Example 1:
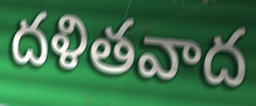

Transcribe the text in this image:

దళితవాద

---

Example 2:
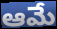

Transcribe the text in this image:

ఆమే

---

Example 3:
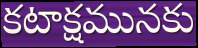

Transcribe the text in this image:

కటాక్షమునకు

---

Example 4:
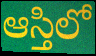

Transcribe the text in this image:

ఆస్తిలో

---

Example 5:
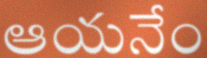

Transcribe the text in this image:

ఆయనేం